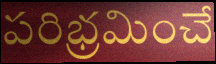
పరిభ్రమించే